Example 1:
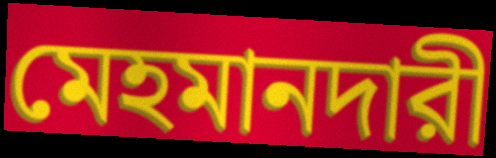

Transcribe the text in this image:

মেহমানদারী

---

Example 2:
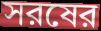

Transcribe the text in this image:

সরষের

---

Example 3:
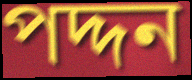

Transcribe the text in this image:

পদ্দন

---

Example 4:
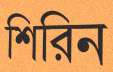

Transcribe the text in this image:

শিরিন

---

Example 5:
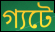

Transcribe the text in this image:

গ্যটে